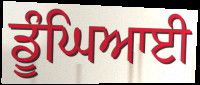
ਡੂੰਘਿਆਈ